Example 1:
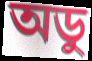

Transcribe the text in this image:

অডু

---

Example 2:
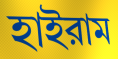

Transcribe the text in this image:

হাইরাম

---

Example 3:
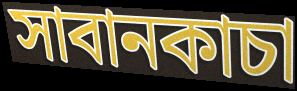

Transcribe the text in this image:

সাবানকাচা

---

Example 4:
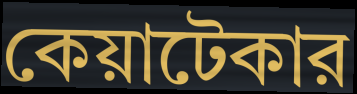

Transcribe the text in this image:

কেয়াটেকার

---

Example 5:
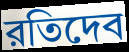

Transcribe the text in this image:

রতিদেব